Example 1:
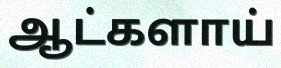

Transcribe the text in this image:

ஆட்களாய்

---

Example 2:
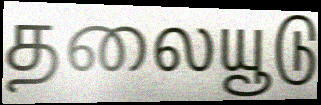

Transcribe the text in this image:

தலையூடு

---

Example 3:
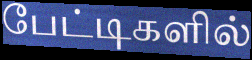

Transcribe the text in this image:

பேட்டிகளில்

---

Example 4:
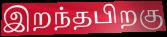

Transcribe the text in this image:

இறந்தபிறகு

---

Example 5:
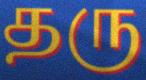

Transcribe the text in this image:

தரு